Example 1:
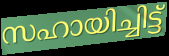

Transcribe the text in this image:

സഹായിച്ചിട്ട്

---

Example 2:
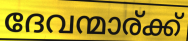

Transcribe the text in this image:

ദേവന്മാര്ക്ക്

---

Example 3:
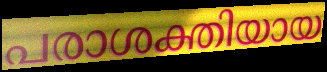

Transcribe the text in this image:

പരാശക്തിയായ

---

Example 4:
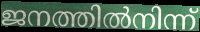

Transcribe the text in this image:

ജനത്തിൽനിന്ന്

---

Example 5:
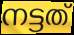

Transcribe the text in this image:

നട്ടത്